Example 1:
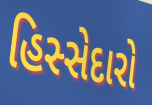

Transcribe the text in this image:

હિસ્સેદારો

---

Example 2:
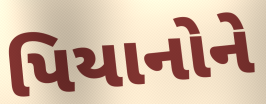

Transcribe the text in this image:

પિયાનોને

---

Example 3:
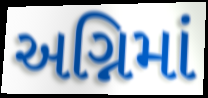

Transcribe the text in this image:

અગ્નિમાં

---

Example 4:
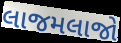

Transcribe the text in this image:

લાજમલાજો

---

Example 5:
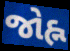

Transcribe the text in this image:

જોહ્ન